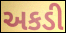
અકડી